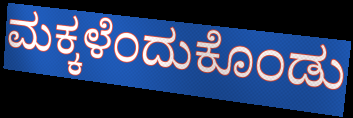
ಮಕ್ಕಳೆಂದುಕೊಂಡು